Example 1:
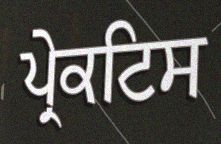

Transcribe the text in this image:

ਪ੍ਰੇਕਟਿਸ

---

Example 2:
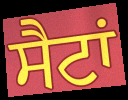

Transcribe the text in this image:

ਸੈਟਾਂ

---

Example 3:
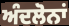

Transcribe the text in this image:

ਅੰਦਲੋਨਾਂ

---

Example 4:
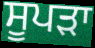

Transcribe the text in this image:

ਸੂਪੜਾ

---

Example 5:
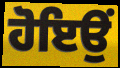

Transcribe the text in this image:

ਹੋਇਉਂ